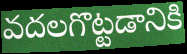
వదలగొట్టడానికి